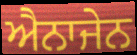
ਐਨਾਜੇਨ